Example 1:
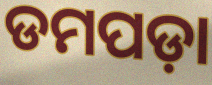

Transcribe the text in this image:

ଡମପଡ଼ା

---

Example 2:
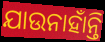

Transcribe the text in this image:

ଯାଉନାହାଁନ୍ତି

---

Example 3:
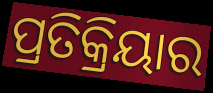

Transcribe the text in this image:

ପ୍ରତିକ୍ରିୟାର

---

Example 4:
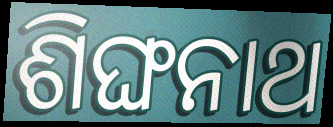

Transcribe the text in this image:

ଶିଙ୍ଘନାଥ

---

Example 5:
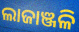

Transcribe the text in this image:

ଲାଜାଞ୍ଜଳି